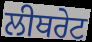
ਲੀਥਰੇਟ